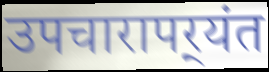
उपचारापर्यंत